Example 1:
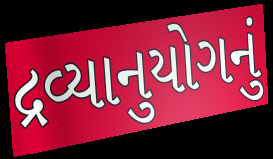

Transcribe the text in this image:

દ્રવ્યાનુયોગનું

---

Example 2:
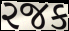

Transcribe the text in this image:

રજક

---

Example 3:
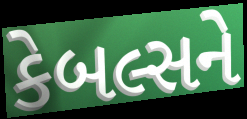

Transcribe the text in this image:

કેબલ્સને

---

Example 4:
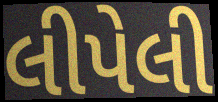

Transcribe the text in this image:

લીપેલી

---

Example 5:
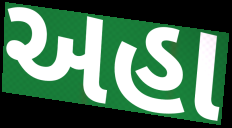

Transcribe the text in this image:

અહા